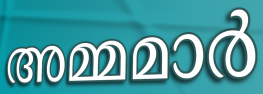
അമ്മമാർ